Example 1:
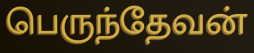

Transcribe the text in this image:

பெருந்தேவன்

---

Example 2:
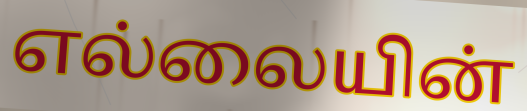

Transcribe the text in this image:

எல்லையின்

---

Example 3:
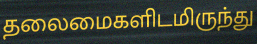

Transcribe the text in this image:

தலைமைகளிடமிருந்து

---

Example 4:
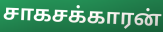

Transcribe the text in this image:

சாகசக்காரன்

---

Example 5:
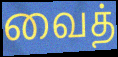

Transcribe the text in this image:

வைத்